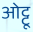
ओट्टू